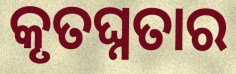
କୃତଘ୍ନତାର